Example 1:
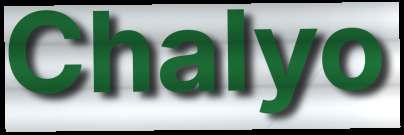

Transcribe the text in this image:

Chalyo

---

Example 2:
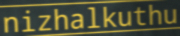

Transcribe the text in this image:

nizhalkuthu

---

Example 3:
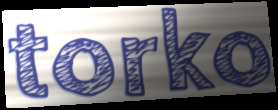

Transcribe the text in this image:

torko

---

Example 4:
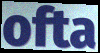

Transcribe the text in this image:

ofta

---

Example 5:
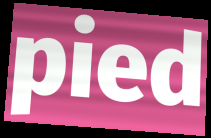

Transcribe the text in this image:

pied